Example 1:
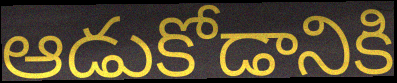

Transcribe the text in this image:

ఆడుకోడానికి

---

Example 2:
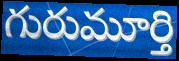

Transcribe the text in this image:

గురుమూర్తి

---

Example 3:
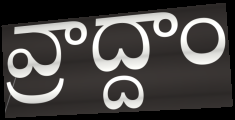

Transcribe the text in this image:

వ్రాద్దాం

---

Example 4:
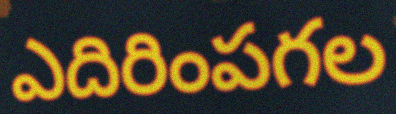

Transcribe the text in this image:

ఎదిరింపగల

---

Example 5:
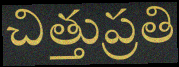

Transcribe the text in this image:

చిత్తుప్రతి